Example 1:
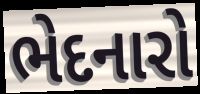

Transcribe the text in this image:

ભેદનારો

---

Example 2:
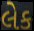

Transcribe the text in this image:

લેક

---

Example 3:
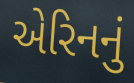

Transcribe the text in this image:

એરિનનું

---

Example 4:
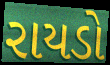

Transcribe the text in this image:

રાયડો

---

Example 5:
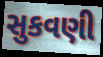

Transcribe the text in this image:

સુકવણી